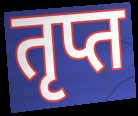
तृप्त